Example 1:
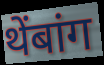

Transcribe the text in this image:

थेंबांग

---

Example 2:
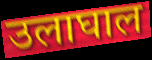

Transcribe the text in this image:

उलाघाल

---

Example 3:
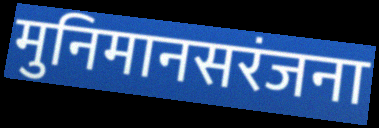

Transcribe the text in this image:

मुनिमानसरंजना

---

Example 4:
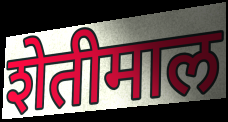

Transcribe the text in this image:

शेतीमाल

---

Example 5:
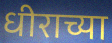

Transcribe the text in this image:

धीराच्या